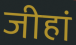
जीहां